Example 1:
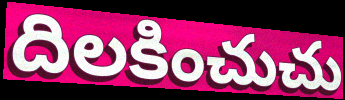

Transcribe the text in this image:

దిలకించుచు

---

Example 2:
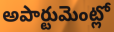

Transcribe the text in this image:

అపార్టుమెంట్లో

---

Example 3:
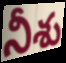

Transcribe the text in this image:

నీశు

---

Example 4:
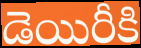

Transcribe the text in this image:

డెయిరీకి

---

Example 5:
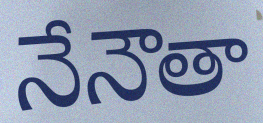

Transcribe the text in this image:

నేనౌతా